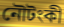
নৌটংকী